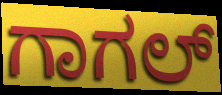
ಗಾಗಲ್